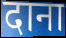
दाना